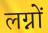
लग्नों